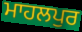
ਮਾਹਲਪੁਰ